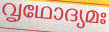
വൃഥോദ്യമഃ